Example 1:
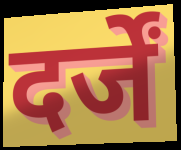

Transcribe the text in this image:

दर्जें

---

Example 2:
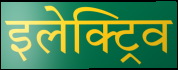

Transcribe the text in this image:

इलेक्ट्रिव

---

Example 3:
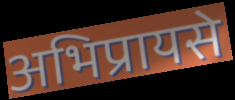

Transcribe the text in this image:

अभिप्रायसे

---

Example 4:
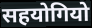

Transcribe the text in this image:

सहयोगियो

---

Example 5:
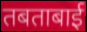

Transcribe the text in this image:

तबताबाई